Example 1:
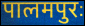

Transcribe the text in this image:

पालमपुरः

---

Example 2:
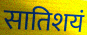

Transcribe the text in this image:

सातिशयं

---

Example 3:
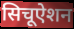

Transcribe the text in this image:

सिचूऐशन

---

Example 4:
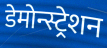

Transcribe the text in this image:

डेमोन्स्ट्रेशन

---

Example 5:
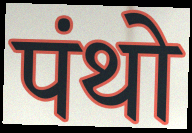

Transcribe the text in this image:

पंथो